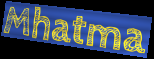
Mhatma